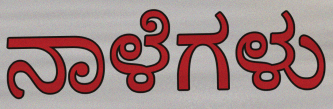
ನಾಳೆಗಳು